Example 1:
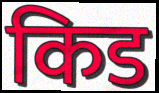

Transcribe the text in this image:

किड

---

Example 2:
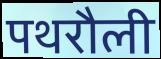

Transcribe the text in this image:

पथरौली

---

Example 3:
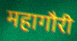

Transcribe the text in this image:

महागौरी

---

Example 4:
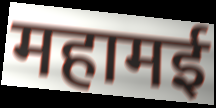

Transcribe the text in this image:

महामई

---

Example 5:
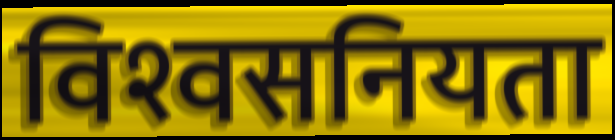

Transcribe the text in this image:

विश्वसनियता